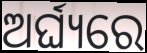
ଅର୍ଘ୍ୟରେ